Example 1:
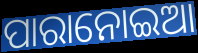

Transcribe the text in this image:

ପାରାନୋଇଆ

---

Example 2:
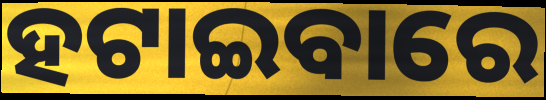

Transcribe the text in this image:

ହଟାଇବାରେ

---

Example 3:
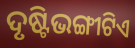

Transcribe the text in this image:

ଦୃଷ୍ଟିଭଙ୍ଗୀଟିଏ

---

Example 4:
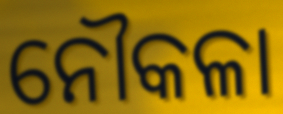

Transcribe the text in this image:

ନୌକଳା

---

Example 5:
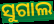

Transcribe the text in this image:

ସୁଗାଲ